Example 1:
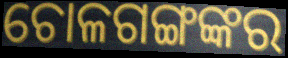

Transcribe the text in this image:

ଚୋଳଗଙ୍ଗଙ୍କର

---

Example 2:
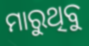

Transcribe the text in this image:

ମାରୁଥିବୁ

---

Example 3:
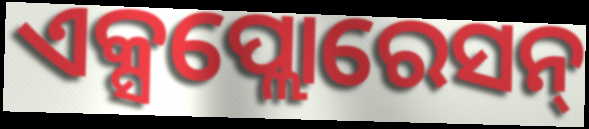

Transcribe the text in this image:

ଏକ୍ସପ୍ଲୋରେସନ୍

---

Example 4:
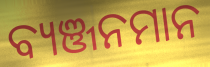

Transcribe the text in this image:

ବ୍ୟଞ୍ଜନମାନ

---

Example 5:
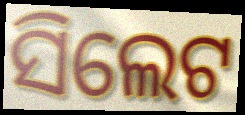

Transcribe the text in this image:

ସିଲେଟ